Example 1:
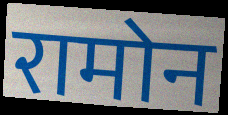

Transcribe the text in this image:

रामोन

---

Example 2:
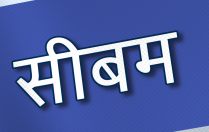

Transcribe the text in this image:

सीबम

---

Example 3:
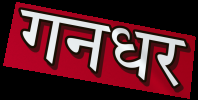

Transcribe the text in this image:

गनधर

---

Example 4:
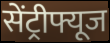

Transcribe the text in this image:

सेंट्रीफ्यूज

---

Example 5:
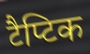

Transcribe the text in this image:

टैप्टिक